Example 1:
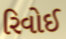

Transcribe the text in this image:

રિવોઈ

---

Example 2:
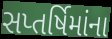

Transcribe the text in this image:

સપ્તર્ષિમાંના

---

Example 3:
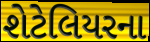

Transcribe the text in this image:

શેટેલિયરના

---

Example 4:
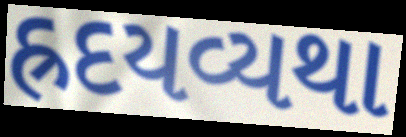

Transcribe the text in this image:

હ્રદયવ્યથા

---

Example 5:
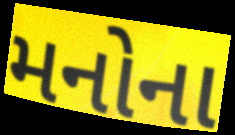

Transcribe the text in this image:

મનોના